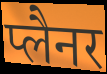
प्लैनर